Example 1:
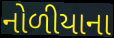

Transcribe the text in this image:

નોળીયાના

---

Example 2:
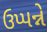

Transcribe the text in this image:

ઉપ્પન્ને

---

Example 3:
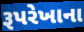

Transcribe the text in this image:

રૂપરેખાના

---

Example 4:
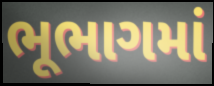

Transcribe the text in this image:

ભૂભાગમાં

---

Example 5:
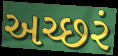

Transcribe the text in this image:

અચ્છરં